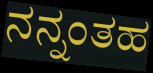
ನನ್ನಂತಹ